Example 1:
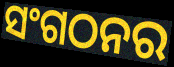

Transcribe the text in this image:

ସଂଗଠନର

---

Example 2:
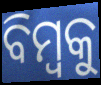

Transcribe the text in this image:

ବିମ୍ବକୁ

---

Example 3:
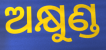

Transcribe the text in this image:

ଅକ୍ଷୁଣ୍ଡ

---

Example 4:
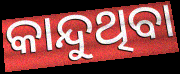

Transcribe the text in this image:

କାନ୍ଦୁଥିବା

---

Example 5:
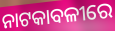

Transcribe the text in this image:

ନାଟକାବଳୀରେ